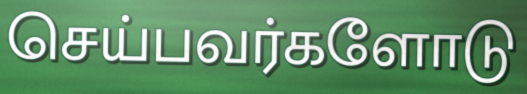
செய்பவர்களோடு